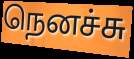
நெனச்சு